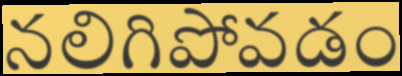
నలిగిపోవడం